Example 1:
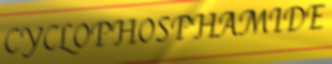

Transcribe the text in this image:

CYCLOPHOSPHAMIDE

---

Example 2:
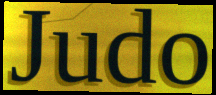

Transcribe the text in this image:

Judo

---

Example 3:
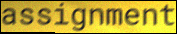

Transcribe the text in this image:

assignment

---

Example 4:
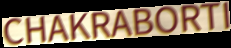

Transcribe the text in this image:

CHAKRABORTI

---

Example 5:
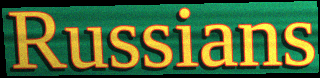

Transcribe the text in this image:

Russians